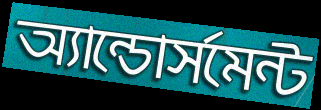
অ্যান্ডোর্সমেন্ট